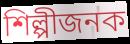
শিল্পীজনক